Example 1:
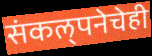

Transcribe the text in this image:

संकल्पनेचेही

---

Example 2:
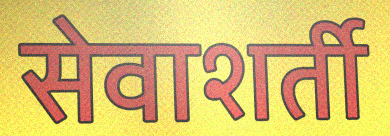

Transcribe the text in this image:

सेवाशर्ती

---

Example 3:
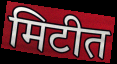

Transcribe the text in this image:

मिटीत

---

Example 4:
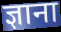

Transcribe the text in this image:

ज्ञाना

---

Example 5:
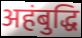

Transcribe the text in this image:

अहंबुद्धि